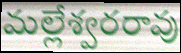
మల్లేశ్వరరావు